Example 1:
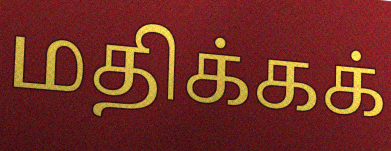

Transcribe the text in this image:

மதிக்கக்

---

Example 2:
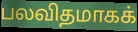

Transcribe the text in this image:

பலவிதமாகக்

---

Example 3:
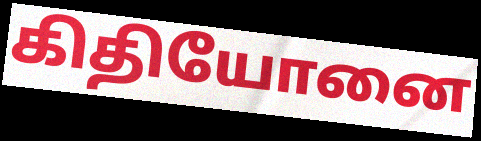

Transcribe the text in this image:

கிதியோனை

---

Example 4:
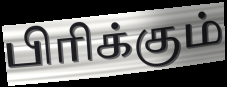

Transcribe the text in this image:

பிரிக்கும்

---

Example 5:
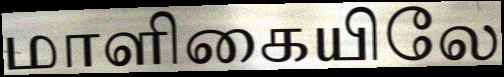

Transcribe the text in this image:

மாளிகையிலே